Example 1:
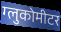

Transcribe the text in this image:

ग्लुकोमीटर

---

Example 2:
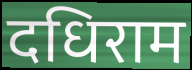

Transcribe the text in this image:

दधिराम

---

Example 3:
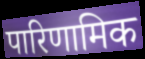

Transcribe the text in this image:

पारिणामिक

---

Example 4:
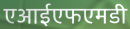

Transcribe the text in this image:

एआईएफएमडी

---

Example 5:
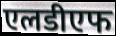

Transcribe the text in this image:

एलडीएफ